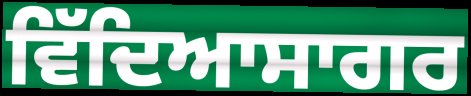
ਵਿੱਦਿਆਸਾਗਰ